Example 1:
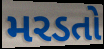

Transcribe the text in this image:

મરડતો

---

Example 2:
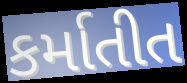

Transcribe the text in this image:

કર્માતીત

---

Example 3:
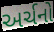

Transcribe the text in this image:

અર્ચનો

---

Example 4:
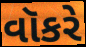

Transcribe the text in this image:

વૉકરે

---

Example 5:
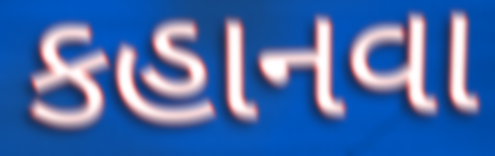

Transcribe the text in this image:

કહાનવા